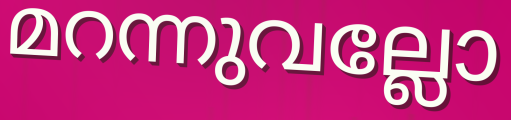
മറന്നുവല്ലോ